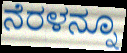
ನೆರಳನ್ನೂ